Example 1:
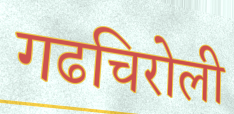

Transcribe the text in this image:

गढचिरोली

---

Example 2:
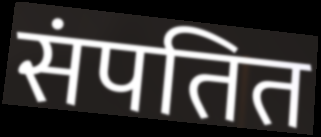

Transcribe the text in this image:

संपतित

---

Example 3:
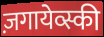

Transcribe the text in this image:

ज़गायेव्स्की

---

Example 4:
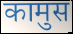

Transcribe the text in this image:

कामुस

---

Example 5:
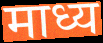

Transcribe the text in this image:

माध्‍य